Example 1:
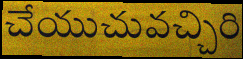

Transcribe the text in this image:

చేయుచువచ్చిరి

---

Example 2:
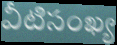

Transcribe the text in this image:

వీటిసంఖ్య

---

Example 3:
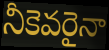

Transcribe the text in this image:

నీకెవరైనా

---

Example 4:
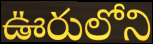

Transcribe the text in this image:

ఊరులోని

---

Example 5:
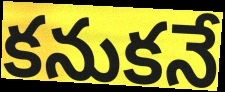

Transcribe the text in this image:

కనుకనే